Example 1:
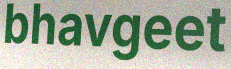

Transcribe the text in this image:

bhavgeet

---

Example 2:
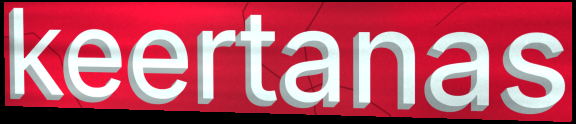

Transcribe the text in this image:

keertanas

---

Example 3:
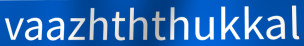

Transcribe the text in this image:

vaazhththukkal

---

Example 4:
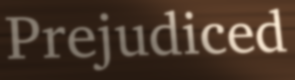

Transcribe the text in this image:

Prejudiced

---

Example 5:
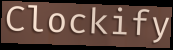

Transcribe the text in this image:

Clockify